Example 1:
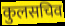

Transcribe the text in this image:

कुलसचिव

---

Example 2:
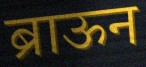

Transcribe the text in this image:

ब्राऊन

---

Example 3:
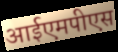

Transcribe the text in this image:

आईएमपीएस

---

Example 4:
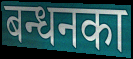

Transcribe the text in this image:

बन्धनका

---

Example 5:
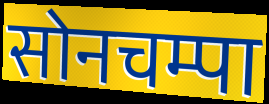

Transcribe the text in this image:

सोनचम्पा